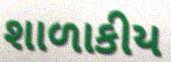
શાળાકીય